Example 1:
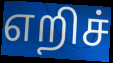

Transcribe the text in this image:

எறிச்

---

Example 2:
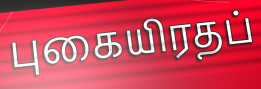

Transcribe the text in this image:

புகையிரதப்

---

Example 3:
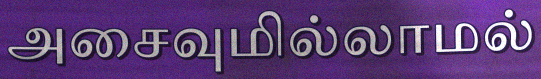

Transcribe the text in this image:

அசைவுமில்லாமல்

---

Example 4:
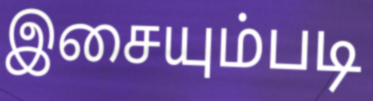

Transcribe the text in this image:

இசையும்படி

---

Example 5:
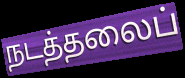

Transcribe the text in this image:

நடத்தலைப்